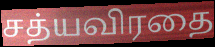
சத்யவிரதை